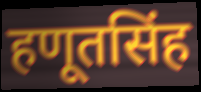
हणूतसिंह